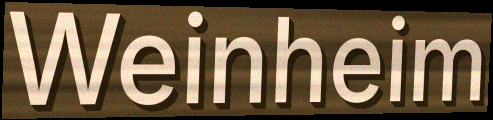
Weinheim